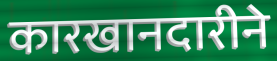
कारखानदारीने